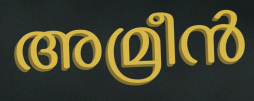
അമ്രീൻ